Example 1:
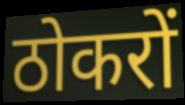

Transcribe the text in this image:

ठोकरों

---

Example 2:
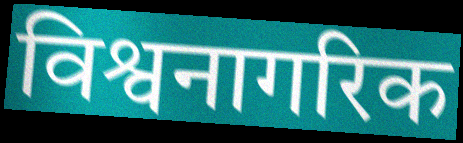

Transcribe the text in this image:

विश्वनागरिक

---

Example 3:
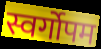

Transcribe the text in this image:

स्वर्गोपम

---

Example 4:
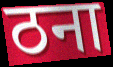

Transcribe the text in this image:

ठना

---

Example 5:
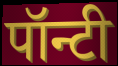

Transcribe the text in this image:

पॉन्टी